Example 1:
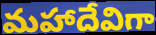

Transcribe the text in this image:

మహాదేవిగా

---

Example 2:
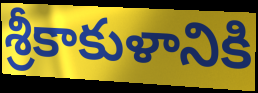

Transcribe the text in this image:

శ్రీకాకుళానికి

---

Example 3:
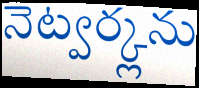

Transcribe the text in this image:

నెట్వర్క్లను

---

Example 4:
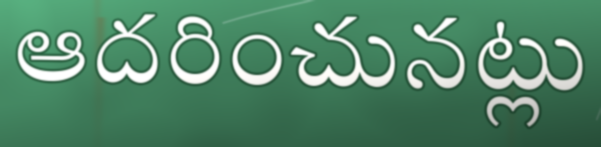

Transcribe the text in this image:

ఆదరించునట్లు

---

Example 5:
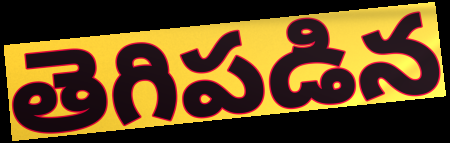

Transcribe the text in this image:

తెగిపడిన